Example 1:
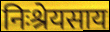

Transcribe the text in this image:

निःश्रेयसाय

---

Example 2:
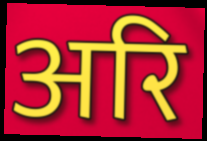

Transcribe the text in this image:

अरि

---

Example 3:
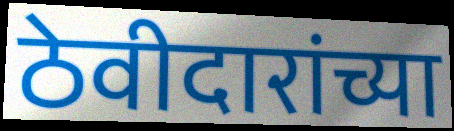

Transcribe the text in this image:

ठेवीदारांच्या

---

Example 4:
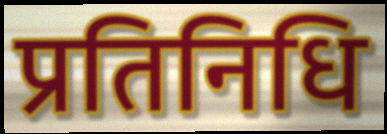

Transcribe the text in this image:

प्रतिनिधि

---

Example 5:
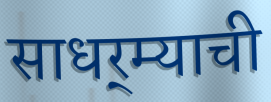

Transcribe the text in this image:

साधर्म्याची